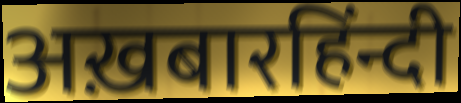
अख़बारहिंन्दी